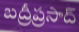
బద్రీప్రసాద్